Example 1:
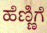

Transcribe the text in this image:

ಹೆಣ್ಣಿಗೆ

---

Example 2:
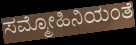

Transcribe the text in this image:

ಸಮ್ಮೋಹಿನಿಯಂತೆ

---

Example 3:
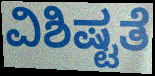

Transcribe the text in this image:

ವಿಶಿಷ್ಟತೆ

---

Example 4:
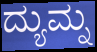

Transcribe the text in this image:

ದ್ಯುಮ್ನ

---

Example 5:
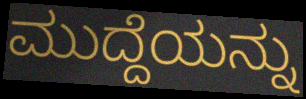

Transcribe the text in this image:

ಮುದ್ದೆಯನ್ನು